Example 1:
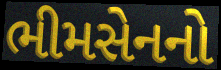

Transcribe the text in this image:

ભીમસેનનો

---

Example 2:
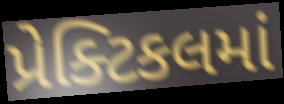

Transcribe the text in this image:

પ્રેક્ટિકલમાં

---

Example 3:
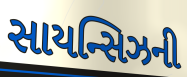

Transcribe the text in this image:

સાયન્સિઝની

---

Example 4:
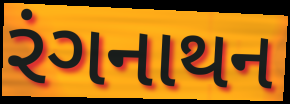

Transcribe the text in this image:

રંગનાથન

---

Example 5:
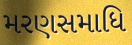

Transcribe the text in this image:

મરણસમાધિ